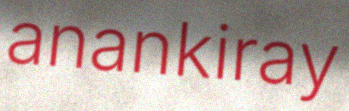
anankiray